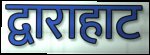
द्वाराहाट